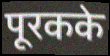
पूरकके